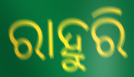
ରାହୁରି